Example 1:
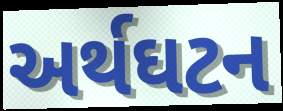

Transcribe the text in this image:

અર્થઘટન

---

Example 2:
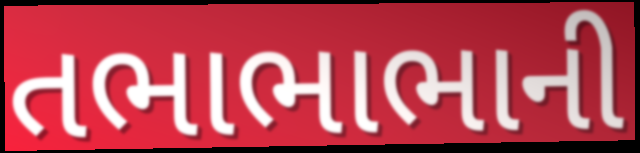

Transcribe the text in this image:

તભાભાભાની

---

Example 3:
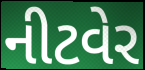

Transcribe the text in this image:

નીટવેર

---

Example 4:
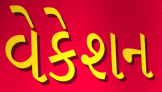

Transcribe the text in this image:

વેકેશન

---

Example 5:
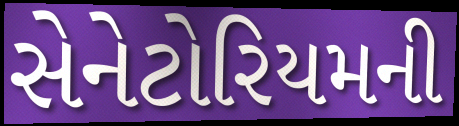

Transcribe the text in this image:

સેનેટોરિયમની